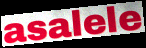
asalele